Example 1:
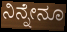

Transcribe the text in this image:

ನಿನ್ನೇನೂ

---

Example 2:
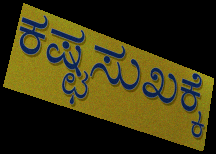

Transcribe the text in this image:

ಕಷ್ಟಸುಖಕ್ಕೆ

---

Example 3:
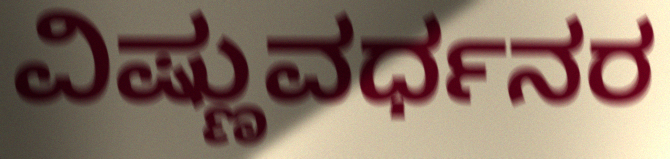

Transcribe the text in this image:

ವಿಷ್ಣುವರ್ಧನರ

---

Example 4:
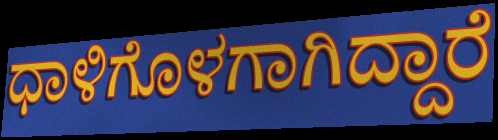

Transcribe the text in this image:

ಧಾಳಿಗೊಳಗಾಗಿದ್ದಾರೆ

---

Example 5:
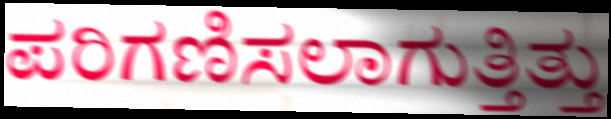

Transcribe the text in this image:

ಪರಿಗಣಿಸಲಾಗುತ್ತಿತ್ತು